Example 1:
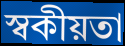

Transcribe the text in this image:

স্বকীয়তা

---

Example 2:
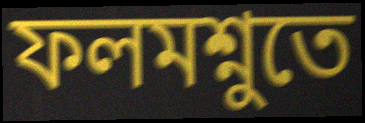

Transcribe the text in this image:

ফলমশ্নুতে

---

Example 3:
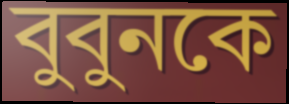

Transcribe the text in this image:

বুবুনকে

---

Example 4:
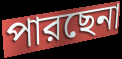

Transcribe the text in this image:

পারছেনা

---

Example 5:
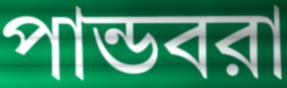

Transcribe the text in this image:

পান্ডবরা